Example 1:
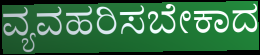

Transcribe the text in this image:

ವ್ಯವಹರಿಸಬೇಕಾದ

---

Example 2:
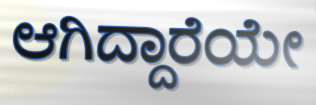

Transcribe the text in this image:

ಆಗಿದ್ದಾರೆಯೇ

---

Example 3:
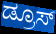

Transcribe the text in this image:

ಡ್ರೂಸ್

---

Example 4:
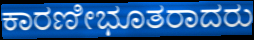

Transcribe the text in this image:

ಕಾರಣೀಭೂತರಾದರು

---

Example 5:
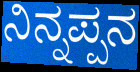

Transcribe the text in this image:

ನಿನ್ನಪ್ಪನ